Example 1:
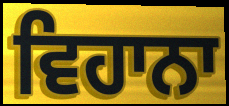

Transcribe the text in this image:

ਵਿਹਾਨਾ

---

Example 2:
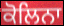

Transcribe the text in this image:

ਕੋਲਿਨਾ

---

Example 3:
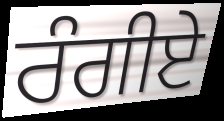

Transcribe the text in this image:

ਰੰਗੀਏ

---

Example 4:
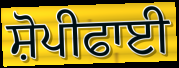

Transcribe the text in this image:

ਸ਼ੋਪੀਫਾਈ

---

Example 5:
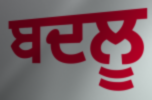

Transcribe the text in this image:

ਬਦਲੂ